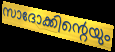
സാദോക്കിന്റെയും